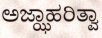
ಅಜ್ಝಾಹರಿತ್ವಾ